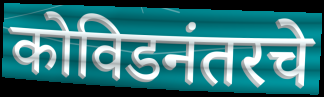
कोविडनंतरचे